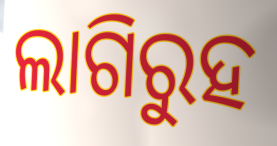
ଲାଗିରୁହ